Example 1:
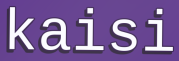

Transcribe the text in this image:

kaisi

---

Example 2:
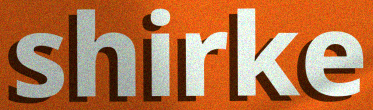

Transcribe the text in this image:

shirke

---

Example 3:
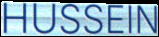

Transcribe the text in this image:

HUSSEIN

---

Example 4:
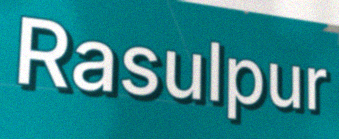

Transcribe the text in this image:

Rasulpur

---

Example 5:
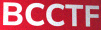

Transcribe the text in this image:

BCCTF